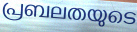
പ്രബലതയുടെ